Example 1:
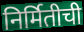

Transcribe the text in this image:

निर्मितीची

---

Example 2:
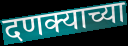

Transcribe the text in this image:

दणक्याच्या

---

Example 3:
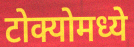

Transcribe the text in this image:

टोक्योमध्ये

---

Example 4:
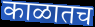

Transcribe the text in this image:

काळातच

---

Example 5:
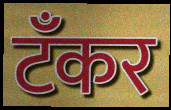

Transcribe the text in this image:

टॅँकर